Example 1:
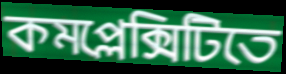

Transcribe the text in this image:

কমপ্লেক্সিটিতে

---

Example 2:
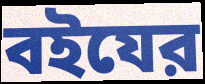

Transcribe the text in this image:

বইযের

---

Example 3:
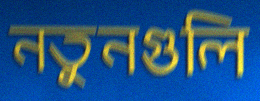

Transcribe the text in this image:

নতুনগুলি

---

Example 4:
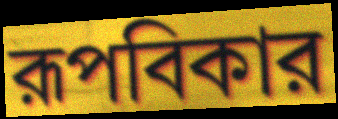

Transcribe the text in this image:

রূপবিকার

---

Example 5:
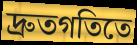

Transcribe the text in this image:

দ্রুতগতিতে